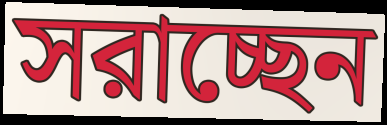
সরাচ্ছেন